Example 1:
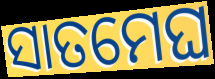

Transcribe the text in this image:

ସାତମେଘ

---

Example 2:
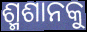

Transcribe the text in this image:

ଶ୍ମଶାନକୁ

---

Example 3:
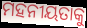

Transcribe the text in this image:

ମହନୀୟତାକୁ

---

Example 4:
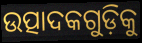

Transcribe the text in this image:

ଉତ୍ପାଦକଗୁଡ଼ିକୁ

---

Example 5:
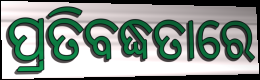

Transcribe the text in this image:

ପ୍ରତିବଦ୍ଧତାରେ